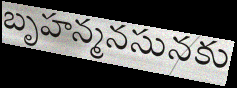
బృహన్మనసునకు